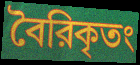
বৈরিকৃতং